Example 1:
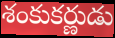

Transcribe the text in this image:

శంకుకర్ణుడు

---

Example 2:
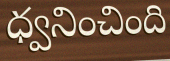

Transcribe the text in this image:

ధ్వనించింది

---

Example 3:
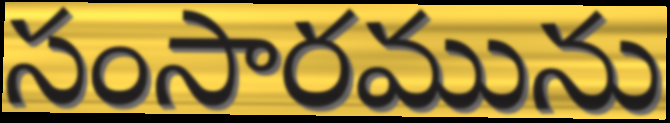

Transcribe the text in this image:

సంసారమును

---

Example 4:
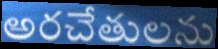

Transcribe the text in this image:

అరచేతులను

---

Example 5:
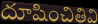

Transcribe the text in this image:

దూషించితివి